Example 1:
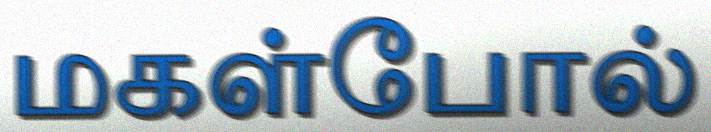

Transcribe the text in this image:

மகள்போல்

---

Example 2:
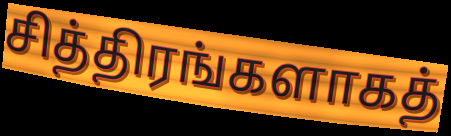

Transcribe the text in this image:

சித்திரங்களாகத்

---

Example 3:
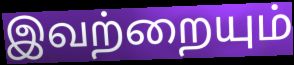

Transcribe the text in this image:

இவற்றையும்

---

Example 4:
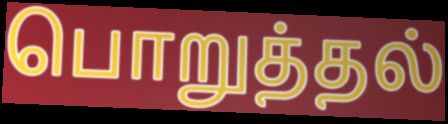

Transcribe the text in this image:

பொறுத்தல்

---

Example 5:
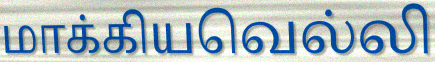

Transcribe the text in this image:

மாக்கியவெல்லி